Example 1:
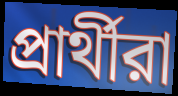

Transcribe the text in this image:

প্রার্থীরা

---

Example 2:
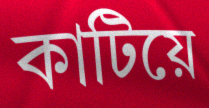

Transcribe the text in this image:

কাটিয়ে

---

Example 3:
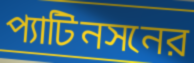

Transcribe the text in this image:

প্যাটিনসনের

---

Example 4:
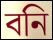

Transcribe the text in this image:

বনি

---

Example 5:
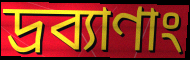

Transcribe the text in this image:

দ্রব্যাণাং